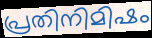
പ്രതിനിമിഷം